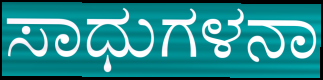
ಸಾಧುಗಳನಾ